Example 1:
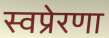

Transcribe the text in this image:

स्वप्रेरणा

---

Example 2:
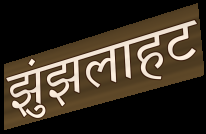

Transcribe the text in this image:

झुंझलाहट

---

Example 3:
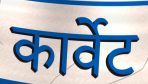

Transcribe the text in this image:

कार्वेट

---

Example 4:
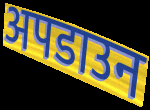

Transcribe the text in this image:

अपडाउन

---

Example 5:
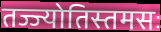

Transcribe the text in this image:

तज्ज्योतिस्तमसः